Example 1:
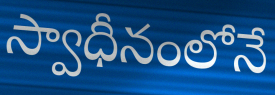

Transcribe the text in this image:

స్వాధీనంలోనే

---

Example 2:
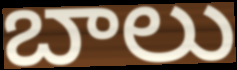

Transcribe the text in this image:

బాలు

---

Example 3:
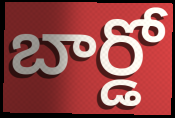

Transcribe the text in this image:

బార్డో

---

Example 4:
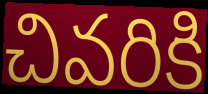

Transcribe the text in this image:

చివరికి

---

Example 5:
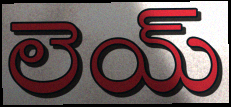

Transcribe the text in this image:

లెయ్